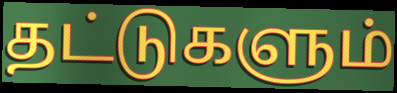
தட்டுகளும்